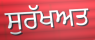
ਸੁਰੱਖਅਤ